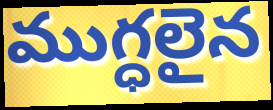
ముగ్ధలైన